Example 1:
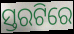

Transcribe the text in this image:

ସ୍ତରଟିରେ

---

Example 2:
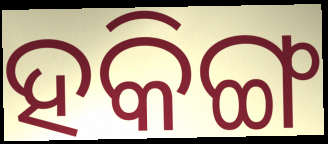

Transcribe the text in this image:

ହକିଙ୍ଗ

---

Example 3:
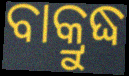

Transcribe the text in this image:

ବାକ୍ରୁଦ୍ଧ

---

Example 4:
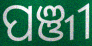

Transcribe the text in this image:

ପଞ୍ଜୀ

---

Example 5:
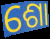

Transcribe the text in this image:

ଶୋ